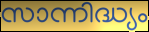
സാന്നിദ്ധ്യം